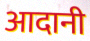
आदानी